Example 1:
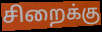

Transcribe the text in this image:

சிறைக்கு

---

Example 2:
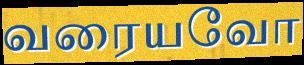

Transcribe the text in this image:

வரையவோ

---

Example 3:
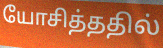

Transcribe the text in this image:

யோசித்ததில்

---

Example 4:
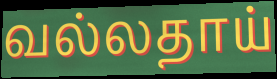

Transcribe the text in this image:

வல்லதாய்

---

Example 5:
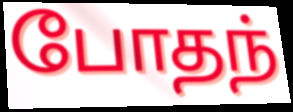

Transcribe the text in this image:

போதந்